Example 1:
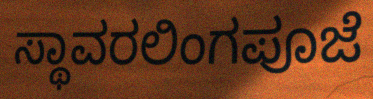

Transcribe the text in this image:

ಸ್ಥಾವರಲಿಂಗಪೂಜೆ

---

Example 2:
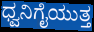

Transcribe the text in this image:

ಧ್ವನಿಗೈಯುತ್ತ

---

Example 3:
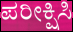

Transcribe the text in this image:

ಪರೀಕ್ಷಿಸಿ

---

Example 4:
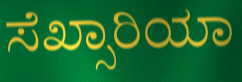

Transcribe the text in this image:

ಸೆಖ್ಸಾರಿಯಾ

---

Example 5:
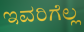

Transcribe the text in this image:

ಇವರಿಗೆಲ್ಲ